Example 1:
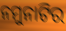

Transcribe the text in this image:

ନମୁନାଟିର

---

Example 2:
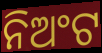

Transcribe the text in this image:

ନିଅଂଟ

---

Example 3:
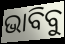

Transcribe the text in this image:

ଭାବିବୁ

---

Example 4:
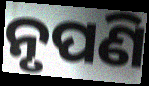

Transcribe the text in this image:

ନୃପଣି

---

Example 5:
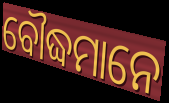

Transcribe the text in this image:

ବୌଦ୍ଧମାନେ